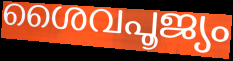
ശൈവപൂജ്യം